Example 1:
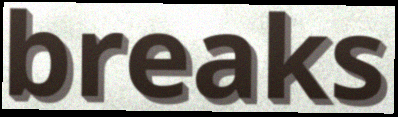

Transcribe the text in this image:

breaks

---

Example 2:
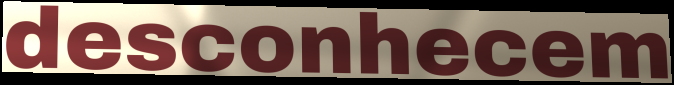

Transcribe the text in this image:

desconhecem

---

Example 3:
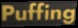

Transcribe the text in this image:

Puffing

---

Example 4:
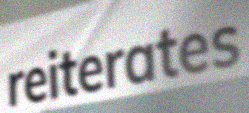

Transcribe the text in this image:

reiterates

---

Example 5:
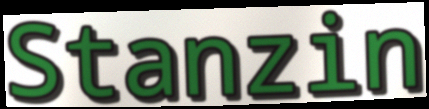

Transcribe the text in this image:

Stanzin